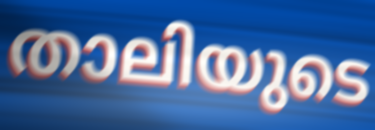
താലിയുടെ